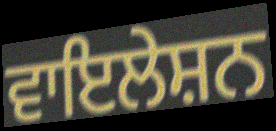
ਵਾਇਲੇਸ਼ਨ